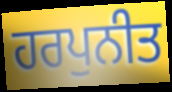
ਹਰਪੁਨੀਤ